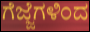
ಗೆಜ್ಜೆಗಳಿಂದ